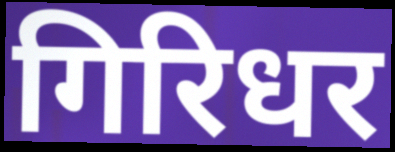
गिरिधर